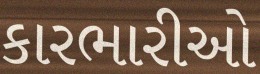
કારભારીઓ